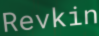
Revkin